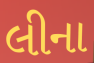
લીના